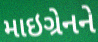
માઇગ્રેનને